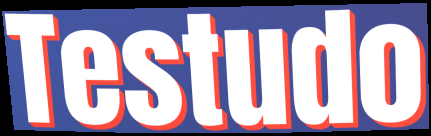
Testudo